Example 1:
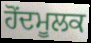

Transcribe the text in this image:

ਹੋਂਦਮੂਲਕ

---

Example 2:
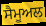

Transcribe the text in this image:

ਸੈਮੂਅਲ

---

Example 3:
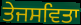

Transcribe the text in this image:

ਤੇਜਸਵਿਤਾ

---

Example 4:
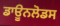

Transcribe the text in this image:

ਡਾਊਨਲੋਡਸ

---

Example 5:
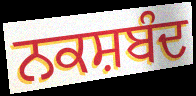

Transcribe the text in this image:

ਨਕਸ਼ਬੰਦ